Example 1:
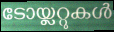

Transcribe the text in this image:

ടോയ്ലറ്റുകൾ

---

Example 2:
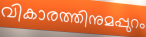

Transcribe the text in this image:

വികാരത്തിനുമപ്പുറം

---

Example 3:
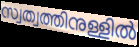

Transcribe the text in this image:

സ്വത്വത്തിനുള്ളിൽ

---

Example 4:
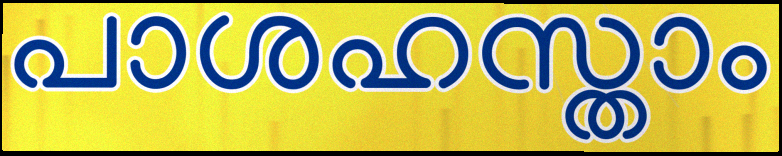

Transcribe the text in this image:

പാശഹസ്താം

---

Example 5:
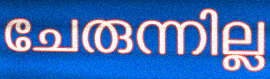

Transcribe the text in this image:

ചേരുന്നില്ല